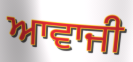
ਆਵਾਜੀ